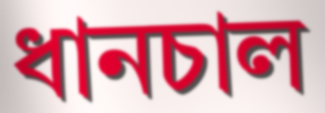
ধানচাল